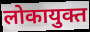
लोकायुक्त